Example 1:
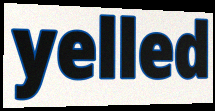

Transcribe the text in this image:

yelled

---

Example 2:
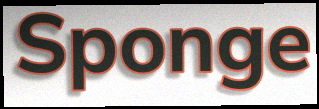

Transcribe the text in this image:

Sponge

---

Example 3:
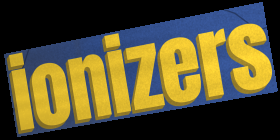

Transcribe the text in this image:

ionizers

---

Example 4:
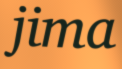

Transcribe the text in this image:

jima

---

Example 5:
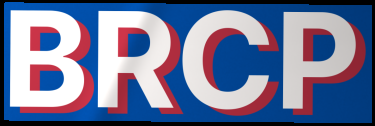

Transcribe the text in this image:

BRCP